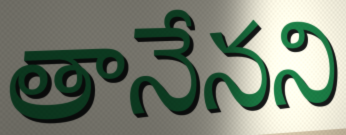
తానేనని